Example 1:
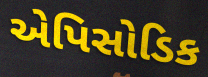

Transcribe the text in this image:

એપિસોડિક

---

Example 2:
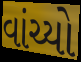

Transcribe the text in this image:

વાંચ્યો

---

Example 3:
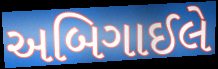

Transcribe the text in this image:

અબિગાઈલે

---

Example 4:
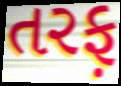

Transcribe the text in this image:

તરફ઼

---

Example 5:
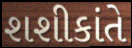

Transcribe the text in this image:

શશીકાંતે